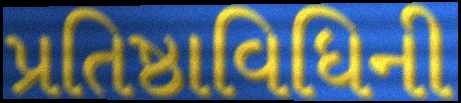
પ્રતિષ્ઠાવિધિની